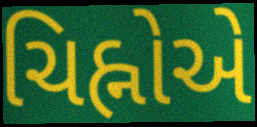
ચિહ્નોએ